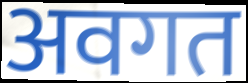
अवगत